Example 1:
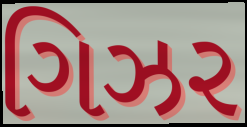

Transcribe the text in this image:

ગિઝર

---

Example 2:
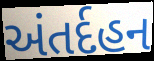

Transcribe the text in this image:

અંતર્દહન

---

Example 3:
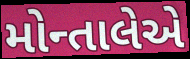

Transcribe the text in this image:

મોન્તાલેએ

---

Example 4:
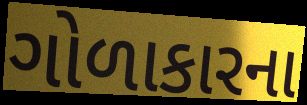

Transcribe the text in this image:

ગોળાકારના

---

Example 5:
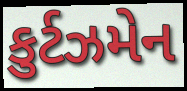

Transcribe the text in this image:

કુર્ટઝમેન